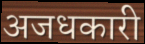
अजधकारी